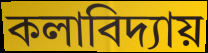
কলাবিদ্যায়